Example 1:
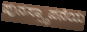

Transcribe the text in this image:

ಪುನಸ್ಸ್ಥಾಪನೆಯ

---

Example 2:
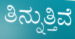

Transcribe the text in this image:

ತಿನ್ನುತ್ತಿವೆ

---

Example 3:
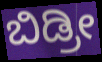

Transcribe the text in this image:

ಬಿಡ್ರೀ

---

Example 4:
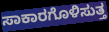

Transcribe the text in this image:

ಸಾಕಾರಗೊಳಿಸುತ್ತ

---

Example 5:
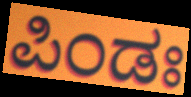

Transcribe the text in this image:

ಪಿಂಡಃ